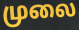
முலை